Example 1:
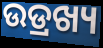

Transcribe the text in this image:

ଉଡ୍ରଖ୍ୟ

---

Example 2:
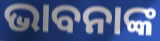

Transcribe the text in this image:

ଭାବନାଙ୍କ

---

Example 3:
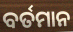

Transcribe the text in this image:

ବର୍ତମାନ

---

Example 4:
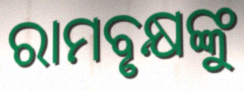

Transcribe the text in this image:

ରାମବୃକ୍ଷଙ୍କୁ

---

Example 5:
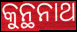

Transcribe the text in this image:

କୁନ୍ଥନାଥ